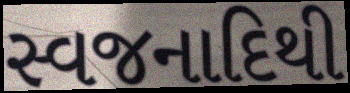
સ્વજનાદિથી